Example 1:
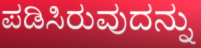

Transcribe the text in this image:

ಪಡಿಸಿರುವುದನ್ನು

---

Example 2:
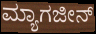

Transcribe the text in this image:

ಮ್ಯಾಗಜೀನ್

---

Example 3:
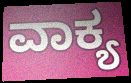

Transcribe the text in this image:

ವಾಕ್ಯ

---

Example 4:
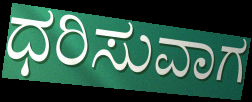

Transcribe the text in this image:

ಧರಿಸುವಾಗ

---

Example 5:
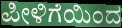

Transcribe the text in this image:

ಪೀಳಿಗೆಯಿಂದ